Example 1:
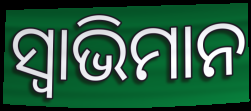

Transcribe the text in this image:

ସ୍ୱାଭିମାନ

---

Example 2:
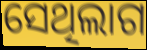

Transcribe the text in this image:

ସେଥିଲାଗ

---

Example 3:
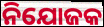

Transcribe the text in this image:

ନିଯୋଜକ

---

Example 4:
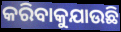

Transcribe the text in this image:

କରିବାକୁଯାଉଛି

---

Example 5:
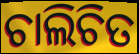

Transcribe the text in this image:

ଚାଲିଚିତ